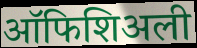
ऑफिशिअली